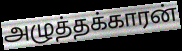
அழுத்தக்காரன்